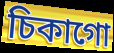
চিকাগো